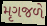
મૃગજળે